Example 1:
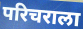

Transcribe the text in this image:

परिचराला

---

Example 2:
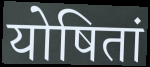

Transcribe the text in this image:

योषितां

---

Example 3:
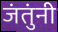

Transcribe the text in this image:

जंतुंनी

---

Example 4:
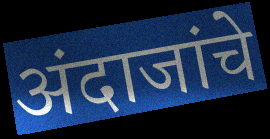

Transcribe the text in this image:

अंदाजांचे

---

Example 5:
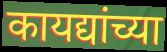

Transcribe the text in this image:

कायद्यांच्या